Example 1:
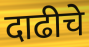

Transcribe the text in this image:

दाढीचे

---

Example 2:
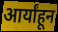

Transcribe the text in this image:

आर्यांहून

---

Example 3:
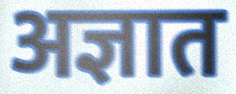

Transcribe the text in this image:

अज्ञात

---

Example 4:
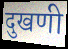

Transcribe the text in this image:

दुखणी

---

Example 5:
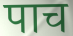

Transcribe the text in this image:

पाच